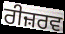
ਰੀਜ਼ਰਵ